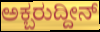
ಅಕ್ಬರುದ್ದೀನ್